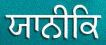
ਯਾਨੀਕਿ